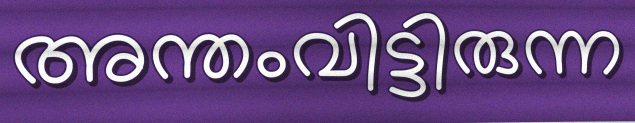
അന്തംവിട്ടിരുന്ന